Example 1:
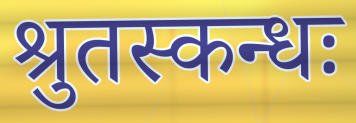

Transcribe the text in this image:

श्रुतस्कन्धः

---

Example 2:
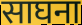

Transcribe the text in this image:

साघना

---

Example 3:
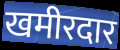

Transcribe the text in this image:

खमीरदार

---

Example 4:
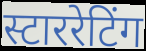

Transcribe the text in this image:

स्टाररेटिंग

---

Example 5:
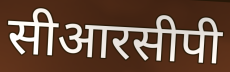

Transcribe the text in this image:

सीआरसीपी